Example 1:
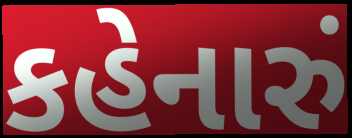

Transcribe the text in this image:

કહેનારું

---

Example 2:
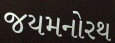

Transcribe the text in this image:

જયમનોરથ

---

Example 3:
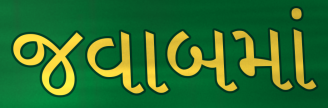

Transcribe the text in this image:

જવાબમાં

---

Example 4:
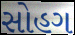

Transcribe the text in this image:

સોહગ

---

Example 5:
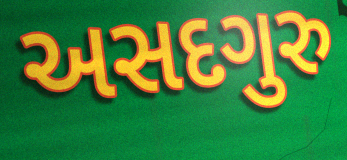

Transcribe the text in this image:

અસદગુરુ